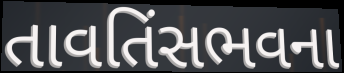
તાવતિંસભવના